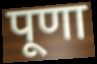
पूणा